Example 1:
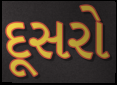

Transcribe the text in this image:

દૂસરો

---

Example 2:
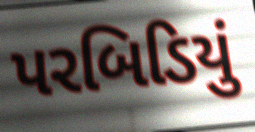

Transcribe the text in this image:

પરબિડિયું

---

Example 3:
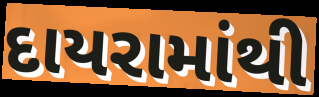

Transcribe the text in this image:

દાયરામાંથી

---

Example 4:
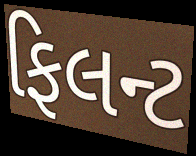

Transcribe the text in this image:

ફિલન્ટ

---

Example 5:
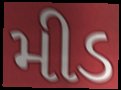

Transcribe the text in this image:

મીડ